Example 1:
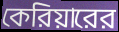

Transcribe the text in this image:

কেরিয়ারের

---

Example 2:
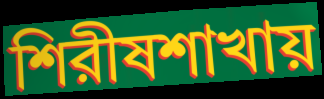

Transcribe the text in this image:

শিরীষশাখায়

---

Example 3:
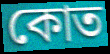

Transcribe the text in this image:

কোত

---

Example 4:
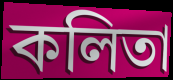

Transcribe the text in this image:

কলিতা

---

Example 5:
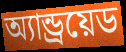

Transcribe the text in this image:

অ্যান্ড্রয়েড